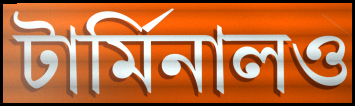
টার্মিনালও